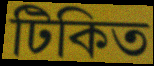
টিকিত